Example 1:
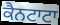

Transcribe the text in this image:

ਕੈਨਟਾਟਾ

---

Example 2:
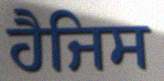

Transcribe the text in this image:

ਹੈਜਿਸ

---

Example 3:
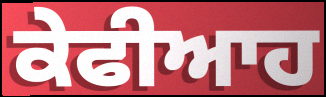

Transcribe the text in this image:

ਕੇਫੀਆਹ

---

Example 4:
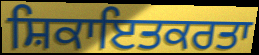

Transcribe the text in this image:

ਸ਼ਿਕਾਇਤਕਰਤਾ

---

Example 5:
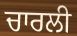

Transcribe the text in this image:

ਚਾਰਲੀ